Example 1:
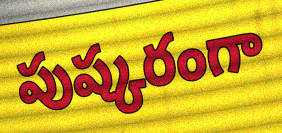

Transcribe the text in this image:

పుష్కరంగా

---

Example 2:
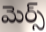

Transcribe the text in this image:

మెర్స్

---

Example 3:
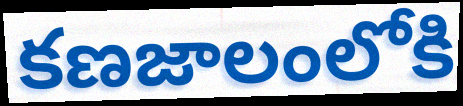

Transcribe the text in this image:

కణజాలంలోకి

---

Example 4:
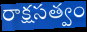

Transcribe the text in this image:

రాక్షసత్వం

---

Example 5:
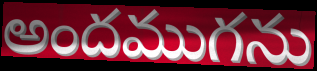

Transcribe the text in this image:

అందముగను